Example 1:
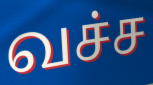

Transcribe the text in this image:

வச்ச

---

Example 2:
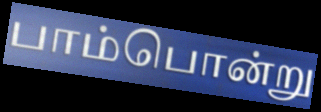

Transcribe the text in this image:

பாம்பொன்று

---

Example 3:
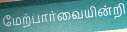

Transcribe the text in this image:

மேற்பார்வையின்றி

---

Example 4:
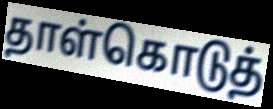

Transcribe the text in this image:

தாள்கொடுத்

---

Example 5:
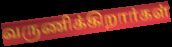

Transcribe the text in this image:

வருணிக்கிறார்கள்